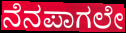
ನೆನಪಾಗಲೇ